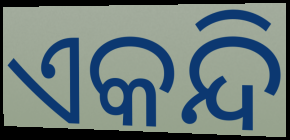
ଏକନ୍ଦି